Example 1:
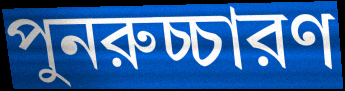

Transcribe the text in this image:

পুনরুচ্চারণ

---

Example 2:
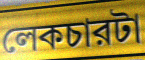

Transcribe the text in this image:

লেকচারটা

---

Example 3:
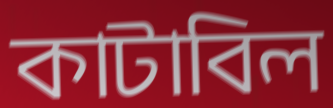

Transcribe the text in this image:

কাটাবিল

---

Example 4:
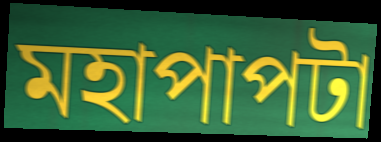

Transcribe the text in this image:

মহাপাপটা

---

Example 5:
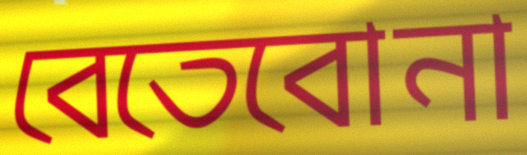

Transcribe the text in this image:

বেতেবোনা